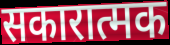
सकारात्मक